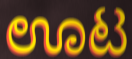
ಊಟ